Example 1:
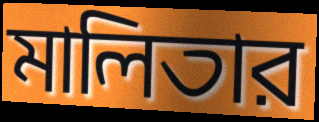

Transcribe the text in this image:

মালিতার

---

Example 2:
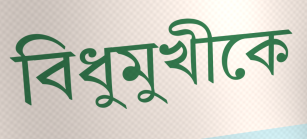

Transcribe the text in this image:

বিধুমুখীকে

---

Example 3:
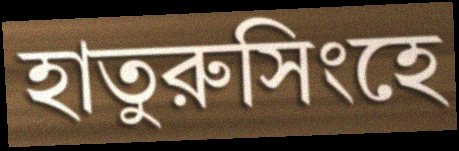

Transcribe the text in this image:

হাতুরুসিংহে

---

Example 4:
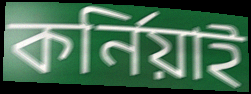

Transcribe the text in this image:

কর্নিয়াই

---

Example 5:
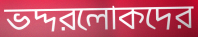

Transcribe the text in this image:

ভদ্দরলোকদের